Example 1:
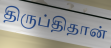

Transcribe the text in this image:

திருப்திதான்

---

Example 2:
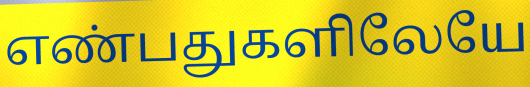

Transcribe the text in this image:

எண்பதுகளிலேயே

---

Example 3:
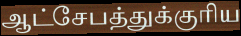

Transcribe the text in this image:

ஆட்சேபத்துக்குரிய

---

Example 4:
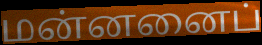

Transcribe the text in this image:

மன்னனைப்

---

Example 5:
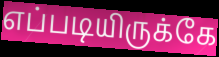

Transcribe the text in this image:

எப்படியிருக்கே